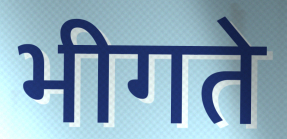
भीगते